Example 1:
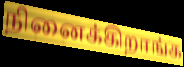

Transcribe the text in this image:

நினைக்கிறாங்க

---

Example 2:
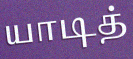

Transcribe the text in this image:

யாடித்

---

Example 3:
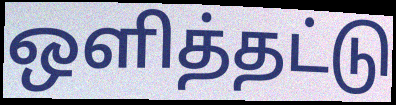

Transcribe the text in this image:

ஒளித்தட்டு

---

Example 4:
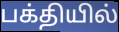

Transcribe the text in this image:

பக்தியில்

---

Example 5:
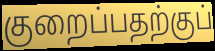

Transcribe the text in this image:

குறைப்பதற்குப்